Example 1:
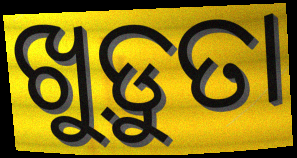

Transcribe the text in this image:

ଖୁଡ଼ୁତା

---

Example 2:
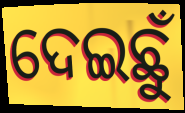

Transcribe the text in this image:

ଦେଇଛୁଁ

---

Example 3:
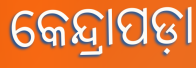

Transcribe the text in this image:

କେନ୍ଦ୍ରାପଡ଼ା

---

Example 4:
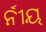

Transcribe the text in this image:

ର୍ନୀୟ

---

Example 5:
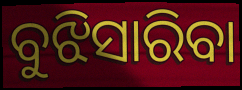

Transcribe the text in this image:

ବୁଝିସାରିବା